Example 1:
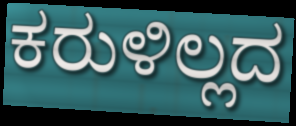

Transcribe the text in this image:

ಕರುಳಿಲ್ಲದ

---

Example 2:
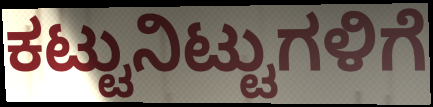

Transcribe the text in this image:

ಕಟ್ಟುನಿಟ್ಟುಗಳಿಗೆ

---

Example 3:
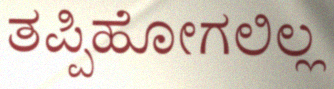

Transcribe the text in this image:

ತಪ್ಪಿಹೋಗಲಿಲ್ಲ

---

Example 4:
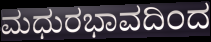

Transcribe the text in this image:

ಮಧುರಭಾವದಿಂದ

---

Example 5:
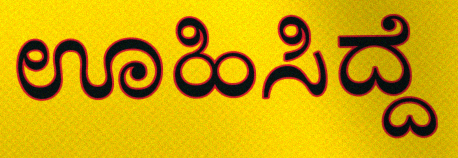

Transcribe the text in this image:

ಊಹಿಸಿದ್ದೆ